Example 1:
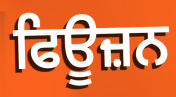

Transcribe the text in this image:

ਫਿਊਜ਼ਨ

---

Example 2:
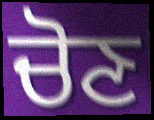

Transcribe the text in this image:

ਚੋਣ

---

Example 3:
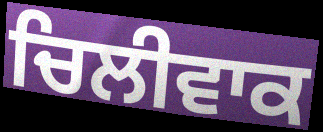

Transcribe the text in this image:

ਚਿਲੀਵਾਕ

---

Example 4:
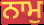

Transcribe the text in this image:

ਨਾਮੁ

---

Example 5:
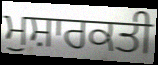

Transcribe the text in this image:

ਮੁਸ਼ਾਰਕਤੀ